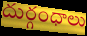
దుర్గంధాలు